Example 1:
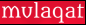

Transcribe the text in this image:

mulaqat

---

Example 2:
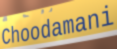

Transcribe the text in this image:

Choodamani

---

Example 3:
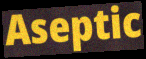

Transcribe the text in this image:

Aseptic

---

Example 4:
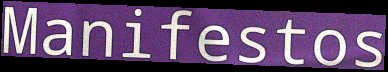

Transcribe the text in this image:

Manifestos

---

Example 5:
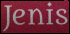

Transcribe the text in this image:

Jenis